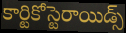
కార్టికోస్టెరాయిడ్స్